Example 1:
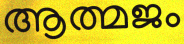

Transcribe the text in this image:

ആത്മജം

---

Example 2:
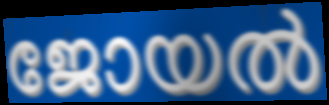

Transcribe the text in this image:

ജോയൽ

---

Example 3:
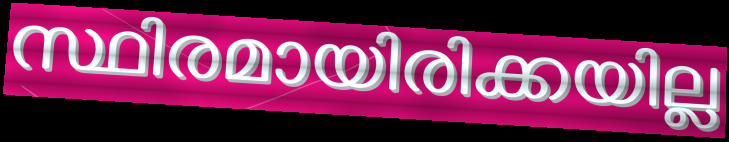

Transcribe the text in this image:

സ്ഥിരമായിരിക്കയില്ല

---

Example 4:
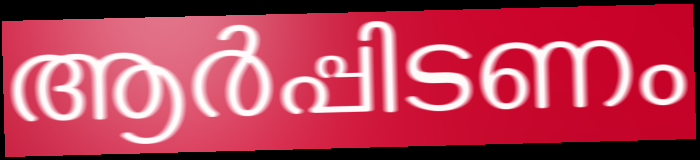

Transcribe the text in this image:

ആർപ്പിടണം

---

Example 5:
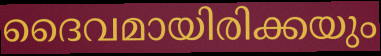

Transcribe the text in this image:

ദൈവമായിരിക്കയും